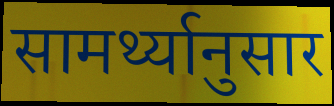
सामर्थ्यानुसार